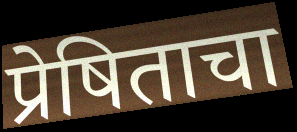
प्रेषिताचा